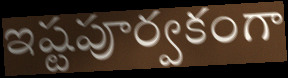
ఇష్టపూర్వకంగా